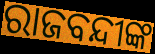
ରାଜବନ୍ଦୀଙ୍କ